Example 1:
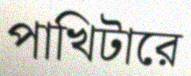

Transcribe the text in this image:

পাখিটারে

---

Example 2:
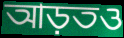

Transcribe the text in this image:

আড়তও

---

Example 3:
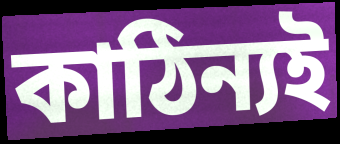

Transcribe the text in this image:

কাঠিন্যই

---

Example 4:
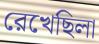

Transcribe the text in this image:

রেখেছিলা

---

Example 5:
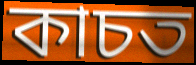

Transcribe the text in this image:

কাচত